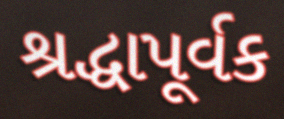
શ્રદ્ધાપૂર્વક